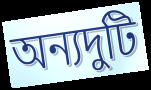
অন্যদুটি